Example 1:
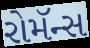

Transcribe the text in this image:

રોમૅન્સ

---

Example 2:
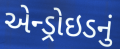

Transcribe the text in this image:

એન્ડ્રોઇડનું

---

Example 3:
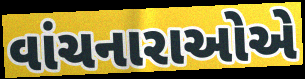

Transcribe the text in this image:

વાંચનારાઓએ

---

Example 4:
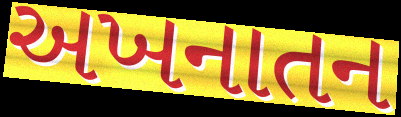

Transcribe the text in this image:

અખનાતન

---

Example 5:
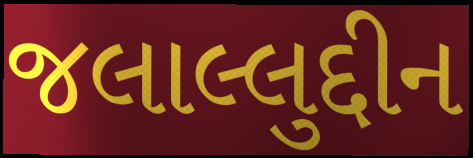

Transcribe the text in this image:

જલાલ્લુદ્દીન